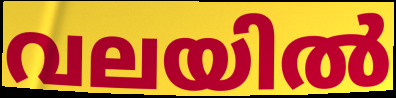
വലയിൽ